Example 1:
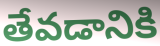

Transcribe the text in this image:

తేవడానికి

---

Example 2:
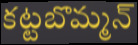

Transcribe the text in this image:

కట్టబొమ్మన్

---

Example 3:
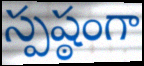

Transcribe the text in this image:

స్పష్ఠంగా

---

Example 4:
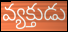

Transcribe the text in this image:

వ్యక్తుడు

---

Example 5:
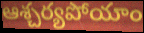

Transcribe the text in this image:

ఆశ్చర్యపోయాం